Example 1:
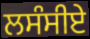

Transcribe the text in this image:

ਲਸੰਸੀਏ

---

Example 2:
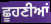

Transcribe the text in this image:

ਛੂਹਣੀਆਂ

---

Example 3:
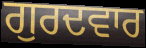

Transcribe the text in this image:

ਗੁਰਦਵਾਰ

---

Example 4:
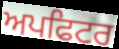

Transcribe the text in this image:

ਅਪਫਿਟਰ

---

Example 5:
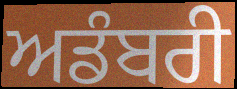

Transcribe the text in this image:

ਅਡੰਬਰੀ